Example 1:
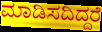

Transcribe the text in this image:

ಮಾಡಿಸದಿದ್ದರೆ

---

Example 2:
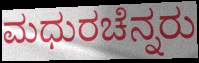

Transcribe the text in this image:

ಮಧುರಚೆನ್ನರು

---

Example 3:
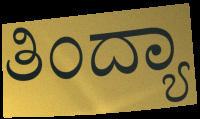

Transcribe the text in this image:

ತಿಂದ್ಯಾ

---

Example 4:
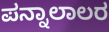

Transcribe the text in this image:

ಪನ್ನಾಲಾಲರ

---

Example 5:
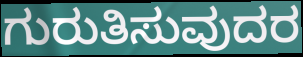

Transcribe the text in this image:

ಗುರುತಿಸುವುದರ